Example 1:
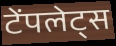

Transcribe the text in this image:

टेंपलेट्स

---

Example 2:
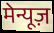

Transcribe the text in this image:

मेन्यूज़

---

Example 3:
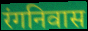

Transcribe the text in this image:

रंगनिवास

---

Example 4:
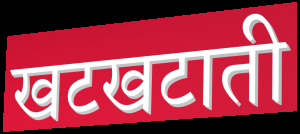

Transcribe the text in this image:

खटखटाती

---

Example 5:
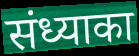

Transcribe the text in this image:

संध्याका